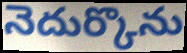
నెదుర్కొను